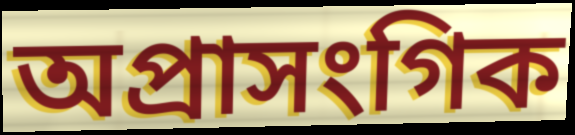
অপ্ৰাসংগিক